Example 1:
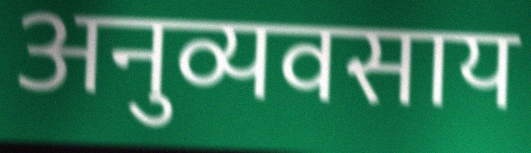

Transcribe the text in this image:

अनुव्यवसाय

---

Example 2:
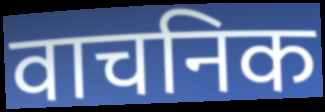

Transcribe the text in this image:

वाचनिक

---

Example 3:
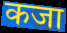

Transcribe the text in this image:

कजा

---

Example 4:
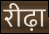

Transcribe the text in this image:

रीढ़ा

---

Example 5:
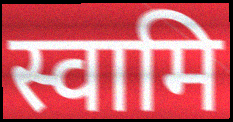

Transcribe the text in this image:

स्वामि